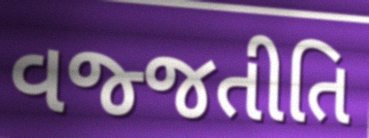
વજ્જતીતિ